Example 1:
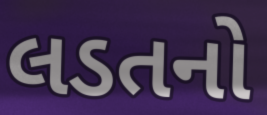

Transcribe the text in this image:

લડતનો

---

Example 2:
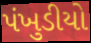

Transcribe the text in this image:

પંખુડીયો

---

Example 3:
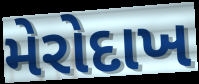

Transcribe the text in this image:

મેરોદાખ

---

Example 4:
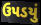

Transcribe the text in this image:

ઉપડયું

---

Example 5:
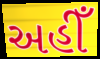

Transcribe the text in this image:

અહીઁ